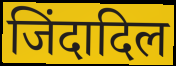
जिंदादिल